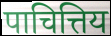
पाचित्तिय